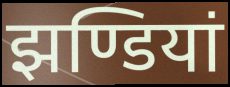
झण्डियां